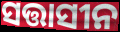
ସତ୍ତାସୀନ